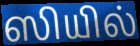
ஸியில்